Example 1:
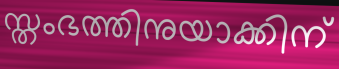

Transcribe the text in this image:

സ്തംഭത്തിനുയാക്കിന്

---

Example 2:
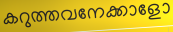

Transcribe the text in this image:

കറുത്തവനേക്കാളോ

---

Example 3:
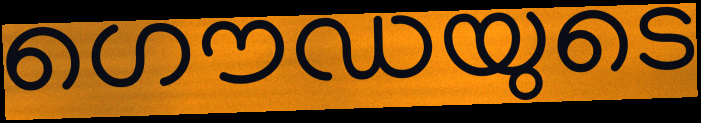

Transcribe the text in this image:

ഗൌഡയുടെ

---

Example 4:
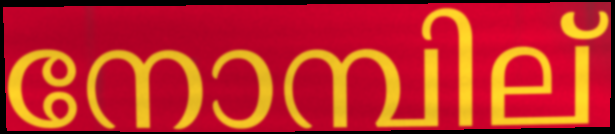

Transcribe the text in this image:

നോമ്പില്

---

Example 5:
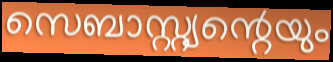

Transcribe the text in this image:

സെബാസ്റ്റ്യന്റെയും